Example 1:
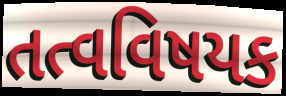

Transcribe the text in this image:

તત્વવિષયક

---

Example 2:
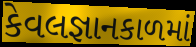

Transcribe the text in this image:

કેવલજ્ઞાનકાળમાં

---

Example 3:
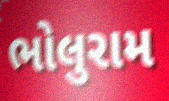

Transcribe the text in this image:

ભોલુરામ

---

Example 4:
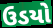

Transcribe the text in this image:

ઉડયો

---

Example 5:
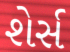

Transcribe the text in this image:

શેર્સ